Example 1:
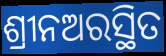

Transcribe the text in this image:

ଶ୍ରୀନଅରସ୍ଥିତ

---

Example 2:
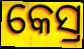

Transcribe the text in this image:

କେସ୍ର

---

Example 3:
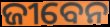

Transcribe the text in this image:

ଜୀବେନ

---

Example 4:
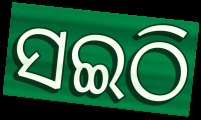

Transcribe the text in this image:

ସଇଠି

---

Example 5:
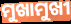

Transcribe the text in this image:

ମୁଖାମୁଖୀ